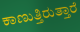
ಕಾಣುತ್ತಿರುತ್ತಾರೆ